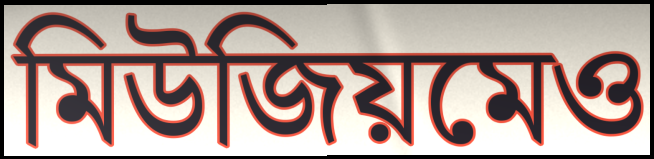
মিউজিয়মেও